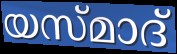
യസ്മാദ്